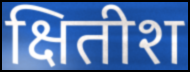
क्षितीश